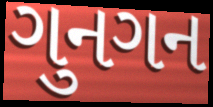
ગુનગન